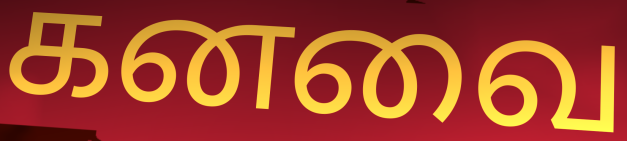
கனவை